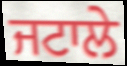
ਜਟਾਲੇ